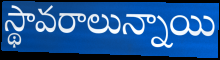
స్థావరాలున్నాయి